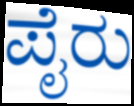
ಪೈರು